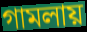
গামলায়